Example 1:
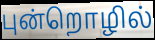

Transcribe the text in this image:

புன்றொழில்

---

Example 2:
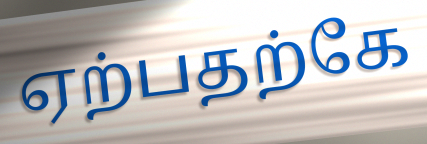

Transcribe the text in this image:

ஏற்பதற்கே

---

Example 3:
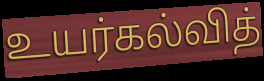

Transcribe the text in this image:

உயர்கல்வித்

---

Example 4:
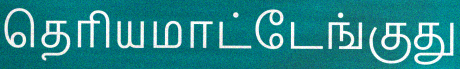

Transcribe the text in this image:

தெரியமாட்டேங்குது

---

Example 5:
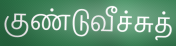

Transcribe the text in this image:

குண்டுவீச்சுத்